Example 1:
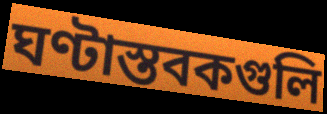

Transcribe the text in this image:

ঘণ্টাস্তবকগুলি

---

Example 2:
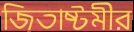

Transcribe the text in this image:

জিতাষ্টমীর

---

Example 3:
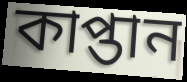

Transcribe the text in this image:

কাপ্তান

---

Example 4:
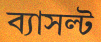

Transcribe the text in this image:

ব্যাসল্ট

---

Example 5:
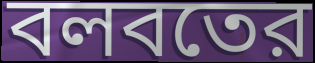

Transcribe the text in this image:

বলবতের